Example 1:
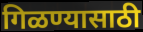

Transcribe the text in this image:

गिळण्यासाठी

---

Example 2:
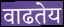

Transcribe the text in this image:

वाढतेय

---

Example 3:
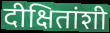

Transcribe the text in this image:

दीक्षितांशी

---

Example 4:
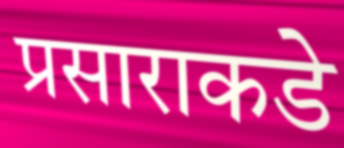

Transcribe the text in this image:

प्रसाराकडे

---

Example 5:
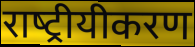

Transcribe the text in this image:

राष्ट्रीयीकरण